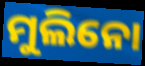
ମୁଲିନୋ